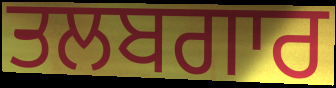
ਤਲਬਗਾਰ